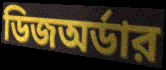
ডিজঅর্ডার